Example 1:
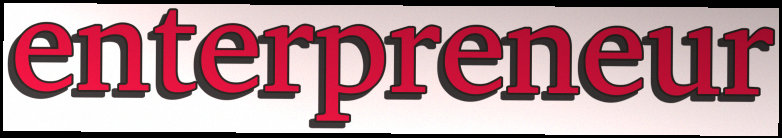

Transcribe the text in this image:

enterpreneur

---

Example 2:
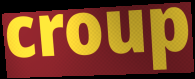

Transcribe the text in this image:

croup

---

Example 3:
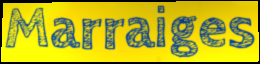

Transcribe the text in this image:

Marraiges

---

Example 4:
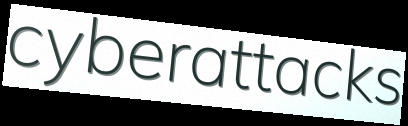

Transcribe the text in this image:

cyberattacks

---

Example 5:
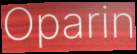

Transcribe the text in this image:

Oparin